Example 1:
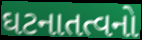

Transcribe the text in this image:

ઘટનાતત્વનો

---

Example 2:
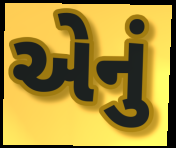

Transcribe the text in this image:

એેનું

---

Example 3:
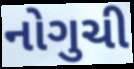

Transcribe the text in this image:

નોગુચી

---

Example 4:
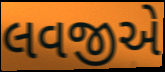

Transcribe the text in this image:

લવજીએ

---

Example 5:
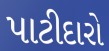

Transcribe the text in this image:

પાટીદારો